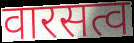
वारसत्व